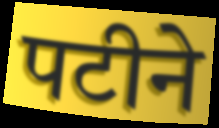
पटीने